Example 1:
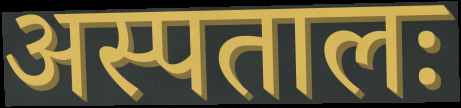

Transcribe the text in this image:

अस्पतालः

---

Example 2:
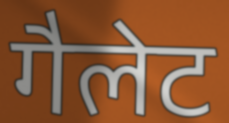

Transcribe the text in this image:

गैलेट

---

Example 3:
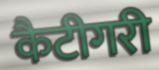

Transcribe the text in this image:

कैटीगरी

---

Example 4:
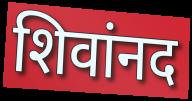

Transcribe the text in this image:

शिवांनद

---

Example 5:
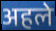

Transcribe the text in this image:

अहले